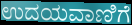
ಉದಯವಾಣಿಗೆ